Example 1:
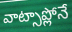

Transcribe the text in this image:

వాట్సాప్లోనే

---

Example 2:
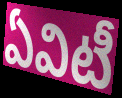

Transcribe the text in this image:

ఏవిటీ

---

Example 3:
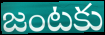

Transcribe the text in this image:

జంటకు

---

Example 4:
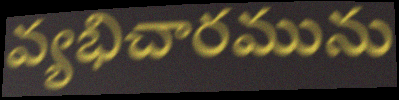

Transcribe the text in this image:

వ్యభిచారమును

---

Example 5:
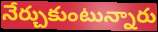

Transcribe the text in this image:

నేర్చుకుంటున్నారు